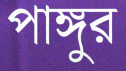
পাঙ্গুর